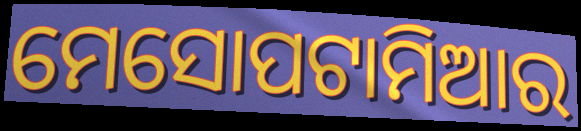
ମେସୋପଟାମିଆର